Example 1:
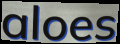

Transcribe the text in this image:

aloes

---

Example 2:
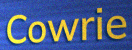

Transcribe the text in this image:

Cowrie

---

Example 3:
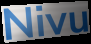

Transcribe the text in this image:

Nivu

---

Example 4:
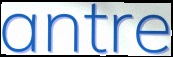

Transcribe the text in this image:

antre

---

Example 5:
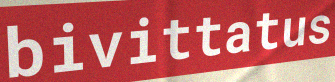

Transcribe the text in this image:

bivittatus